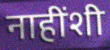
नाहींशी